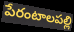
పేరంటాలపల్లి